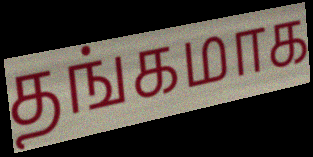
தங்கமாக